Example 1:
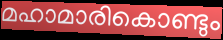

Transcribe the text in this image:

മഹാമാരികൊണ്ടും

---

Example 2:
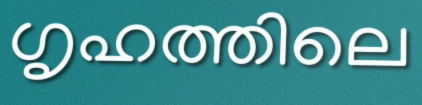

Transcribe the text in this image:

ഗൃഹത്തിലെ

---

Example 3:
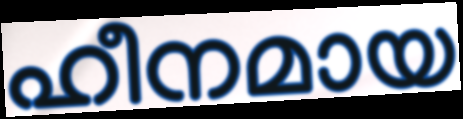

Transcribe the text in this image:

ഹീനമായ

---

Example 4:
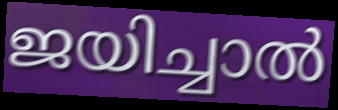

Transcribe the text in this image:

ജയിച്ചാൽ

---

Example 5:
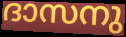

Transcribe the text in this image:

ദാസനു